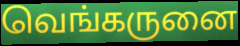
வெங்கருனை